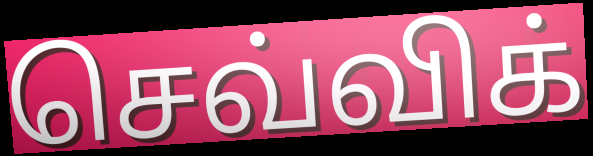
செவ்விக்